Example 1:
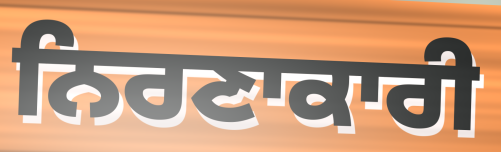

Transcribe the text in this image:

ਨਿਰਣਾਕਾਰੀ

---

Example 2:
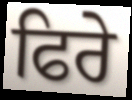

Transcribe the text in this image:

ਫਿਰੇ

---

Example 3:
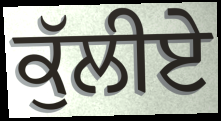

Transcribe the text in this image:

ਕੁੱਲੀਏ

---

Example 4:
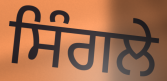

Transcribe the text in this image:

ਸਿੰਗਲੇ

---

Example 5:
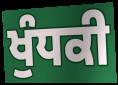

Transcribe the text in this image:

ਖੁੰਧਕੀ